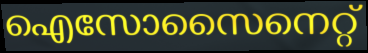
ഐസോസൈനെറ്റ്